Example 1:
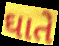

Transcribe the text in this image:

ઘાતે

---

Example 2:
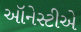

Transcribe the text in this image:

ઑનેસ્ટીએ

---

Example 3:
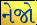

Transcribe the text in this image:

નેજો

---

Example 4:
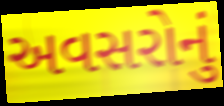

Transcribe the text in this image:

અવસરોનું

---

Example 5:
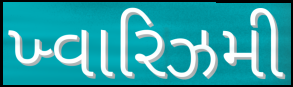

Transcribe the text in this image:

ખ્વારિઝમી